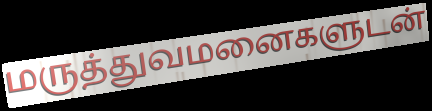
மருத்துவமனைகளுடன்